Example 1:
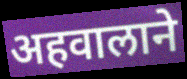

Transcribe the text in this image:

अहवालाने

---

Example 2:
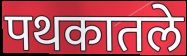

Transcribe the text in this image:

पथकातले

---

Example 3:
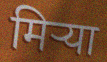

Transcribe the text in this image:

मिऱ्या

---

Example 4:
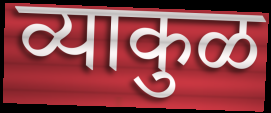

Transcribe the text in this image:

व्याकुळ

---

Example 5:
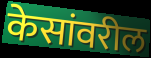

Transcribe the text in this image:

केसांवरील